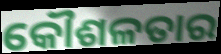
କୌଶଳତାର